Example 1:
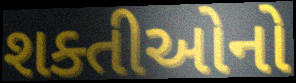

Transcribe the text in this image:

શક્તીઓનો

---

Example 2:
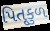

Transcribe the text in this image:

પિતૃકુળ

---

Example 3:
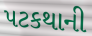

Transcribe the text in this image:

પટકથાની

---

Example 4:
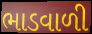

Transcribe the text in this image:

ભાડવાળી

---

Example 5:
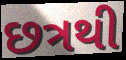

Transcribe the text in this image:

છત્રથી